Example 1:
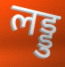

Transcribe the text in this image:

लड्डु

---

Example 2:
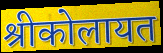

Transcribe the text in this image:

श्रीकोलायत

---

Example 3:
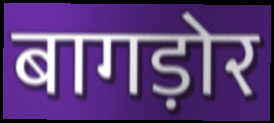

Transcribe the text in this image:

बागड़ोर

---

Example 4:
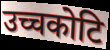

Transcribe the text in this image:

उच्चकोटि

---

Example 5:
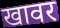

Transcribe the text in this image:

खावर